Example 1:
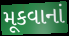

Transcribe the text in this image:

મૂકવાનાં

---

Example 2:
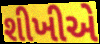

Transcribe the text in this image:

શીખીએ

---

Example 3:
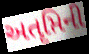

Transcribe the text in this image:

અતૃપ્તિની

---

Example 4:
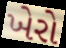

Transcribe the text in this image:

ખેરો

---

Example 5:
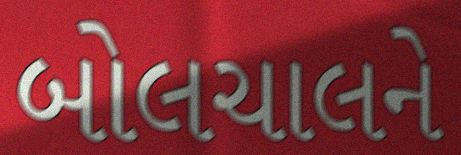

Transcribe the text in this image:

બોલચાલને